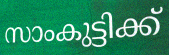
സാംകുട്ടിക്ക്